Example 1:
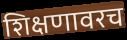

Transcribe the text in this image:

शिक्षणावरच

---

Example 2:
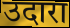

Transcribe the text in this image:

उदारा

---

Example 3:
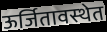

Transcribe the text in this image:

ऊर्जितावस्थेत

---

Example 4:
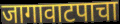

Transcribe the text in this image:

जागावाटपाचा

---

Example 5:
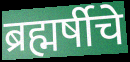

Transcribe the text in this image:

ब्रह्मर्षीचे